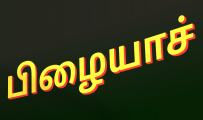
பிழையாச்